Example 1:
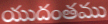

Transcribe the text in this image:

యుదంతము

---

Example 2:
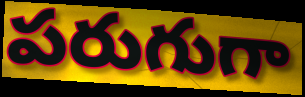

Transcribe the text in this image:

పరుగుగా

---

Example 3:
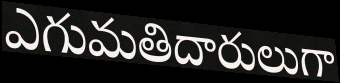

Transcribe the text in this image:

ఎగుమతిదారులుగా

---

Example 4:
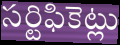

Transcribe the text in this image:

సర్టిఫికెట్లు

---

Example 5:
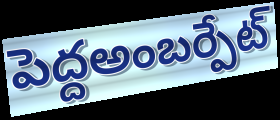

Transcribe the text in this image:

పెద్దఅంబర్పేట్